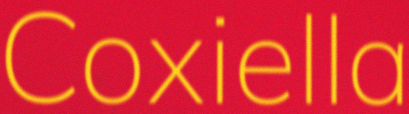
Coxiella